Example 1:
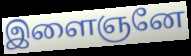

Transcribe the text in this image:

இளைஞனே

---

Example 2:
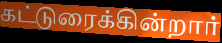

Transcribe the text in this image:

கட்டுரைக்கின்றார்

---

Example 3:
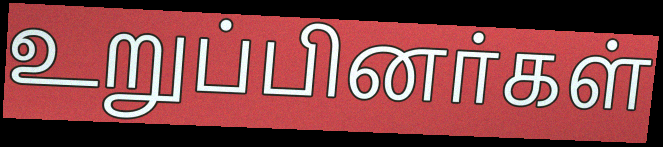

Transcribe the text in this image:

உறுப்பினர்கள்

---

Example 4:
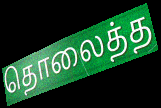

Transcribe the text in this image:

தொலைத்த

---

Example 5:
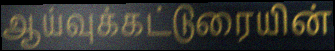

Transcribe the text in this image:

ஆய்வுக்கட்டுரையின்